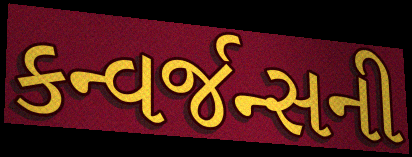
કન્વર્જન્સની